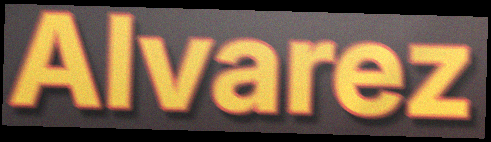
Alvarez